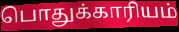
பொதுக்காரியம்